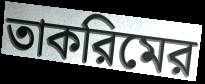
তাকরিমের